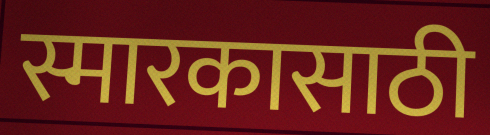
स्मारकासाठी